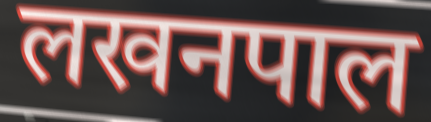
लखनपाल